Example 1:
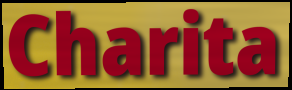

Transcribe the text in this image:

Charita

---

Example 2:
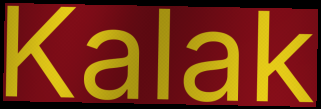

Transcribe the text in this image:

Kalak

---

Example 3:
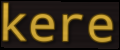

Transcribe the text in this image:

kere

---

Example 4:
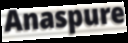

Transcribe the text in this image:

Anaspure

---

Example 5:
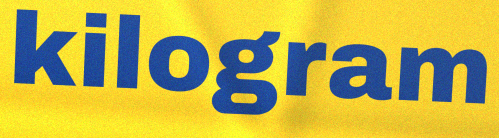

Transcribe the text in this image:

kilogram